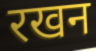
रखन